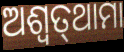
ଅଶ୍ବତ୍‌ଥାମା